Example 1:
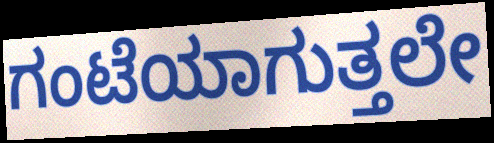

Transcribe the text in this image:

ಗಂಟೆಯಾಗುತ್ತಲೇ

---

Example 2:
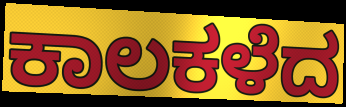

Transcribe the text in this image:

ಕಾಲಕಳೆದ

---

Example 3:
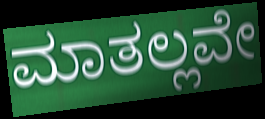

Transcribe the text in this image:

ಮಾತಲ್ಲವೇ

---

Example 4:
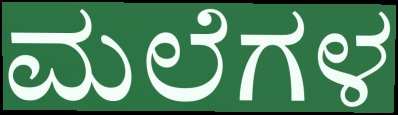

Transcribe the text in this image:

ಮಲೆಗಳ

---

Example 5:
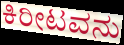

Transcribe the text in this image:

ಕಿರೀಟವನು